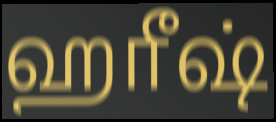
ஹரீஷ்